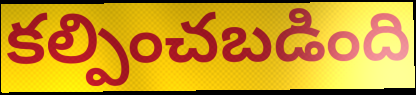
కల్పించబడింది